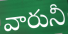
వారునీ